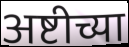
अष्टीच्या